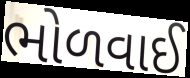
ભોળવાઈ